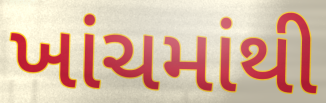
ખાંચમાંથી